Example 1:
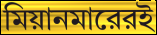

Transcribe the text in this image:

মিয়ানমারেরই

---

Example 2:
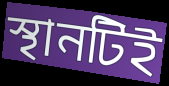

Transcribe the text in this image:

স্থানটিই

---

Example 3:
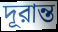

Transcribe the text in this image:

দূরান্ত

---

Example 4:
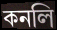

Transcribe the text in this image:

কনলি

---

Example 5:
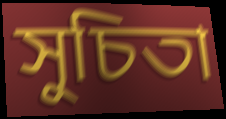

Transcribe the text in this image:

সুচিতা